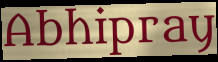
Abhipray